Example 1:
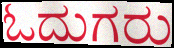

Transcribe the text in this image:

ಓದುಗರು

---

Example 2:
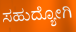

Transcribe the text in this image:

ಸಹುದ್ಯೋಗಿ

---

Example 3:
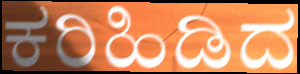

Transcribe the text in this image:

ಕರಿಹಿಡಿದ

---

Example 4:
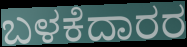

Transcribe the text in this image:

ಬಳಕೆದಾರರ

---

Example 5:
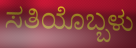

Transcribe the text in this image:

ಸತಿಯೊಬ್ಬಳು